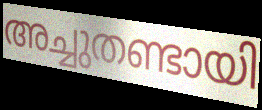
അച്ചുതണ്ടായി